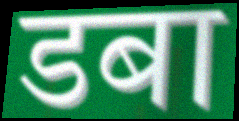
डबा